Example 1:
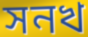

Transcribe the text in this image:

সনখ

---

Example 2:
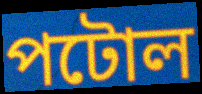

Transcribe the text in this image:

পটোল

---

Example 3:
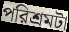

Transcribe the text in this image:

পরিশ্রমটা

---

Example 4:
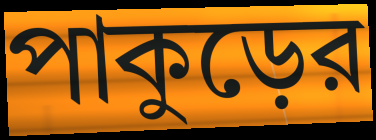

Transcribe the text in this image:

পাকুড়ের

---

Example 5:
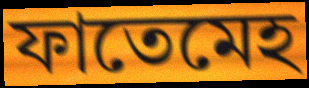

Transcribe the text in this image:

ফাতেমেহ